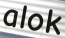
alok